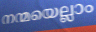
നന്മയെല്ലാം